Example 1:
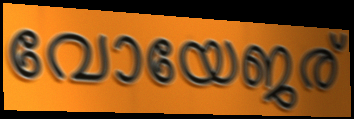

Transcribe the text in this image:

വോയേജര്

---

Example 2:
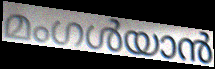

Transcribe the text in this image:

മംഗൾയാൻ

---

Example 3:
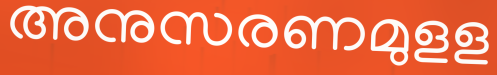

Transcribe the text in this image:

അനുസരണമുളള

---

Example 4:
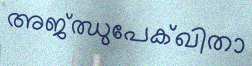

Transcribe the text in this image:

അജ്ഝുപേക്ഖിതാ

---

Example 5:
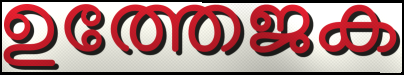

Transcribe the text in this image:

ഉത്തേജക